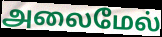
அலைமேல்